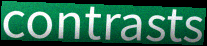
contrasts